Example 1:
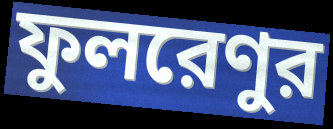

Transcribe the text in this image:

ফুলরেণুর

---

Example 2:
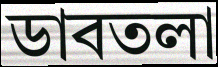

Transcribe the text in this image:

ডাবতলা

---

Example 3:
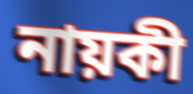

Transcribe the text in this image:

নায়কী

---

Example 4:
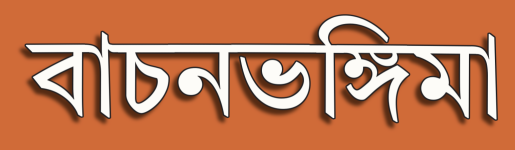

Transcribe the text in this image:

বাচনভঙ্গিমা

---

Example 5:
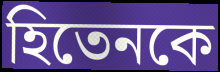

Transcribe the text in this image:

হিতেনকে